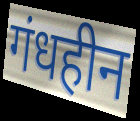
गंधहीन